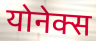
योनेक्स